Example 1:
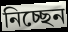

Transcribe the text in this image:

নিচ্ছেন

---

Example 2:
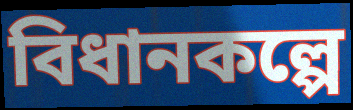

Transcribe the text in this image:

বিধানকল্পে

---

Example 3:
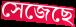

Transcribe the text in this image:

সেজেছে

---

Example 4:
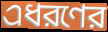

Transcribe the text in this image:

এধরণের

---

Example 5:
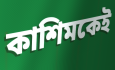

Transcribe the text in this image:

কাশিমকেই